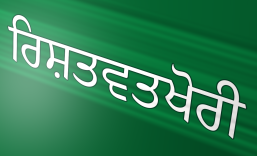
ਰਿਸ਼ਤਵਤਖੋਰੀ